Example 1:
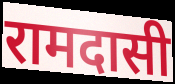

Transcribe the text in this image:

रामदासी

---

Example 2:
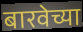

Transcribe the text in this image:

बारवेच्या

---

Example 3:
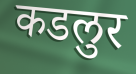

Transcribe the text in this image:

कडलुर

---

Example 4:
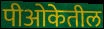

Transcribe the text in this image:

पीओकेतील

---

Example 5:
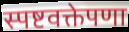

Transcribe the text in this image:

स्पष्टवक्तेपणा